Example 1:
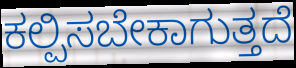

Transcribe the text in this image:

ಕಲ್ಪಿಸಬೇಕಾಗುತ್ತದೆ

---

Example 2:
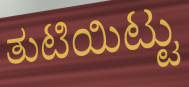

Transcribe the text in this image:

ತುಟಿಯಿಟ್ಟು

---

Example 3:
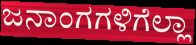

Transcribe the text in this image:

ಜನಾಂಗಗಳಿಗೆಲ್ಲಾ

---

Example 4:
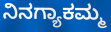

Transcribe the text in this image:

ನಿನಗ್ಯಾಕಮ್ಮ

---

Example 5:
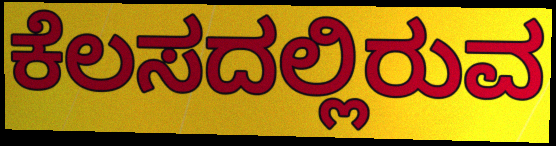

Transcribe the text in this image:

ಕೆಲಸದಲ್ಲಿರುವ